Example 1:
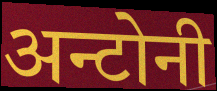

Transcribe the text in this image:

अन्टोनी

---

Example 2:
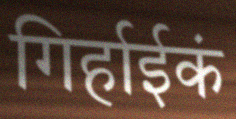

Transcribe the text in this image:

गिर्हाईकं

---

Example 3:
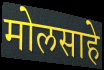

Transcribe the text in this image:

मोलसाहे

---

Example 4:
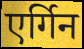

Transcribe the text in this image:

एर्गिन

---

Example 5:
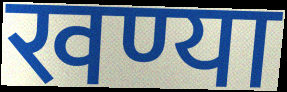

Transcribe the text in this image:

खण्या